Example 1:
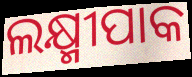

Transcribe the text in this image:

ଲକ୍ଷ୍ମୀପାକ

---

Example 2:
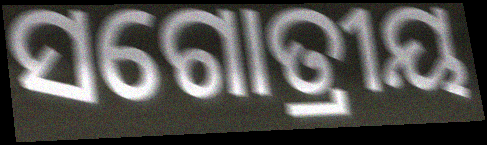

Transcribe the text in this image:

ସଗୋତ୍ରୀୟ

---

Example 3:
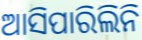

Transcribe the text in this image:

ଆସିପାରିଲିନି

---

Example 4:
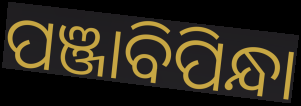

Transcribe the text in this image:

ପଞ୍ଜାବିପିନ୍ଧା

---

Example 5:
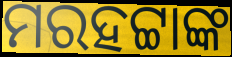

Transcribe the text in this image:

ମରହଟ୍ଟାଙ୍କ